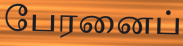
பேரனைப்